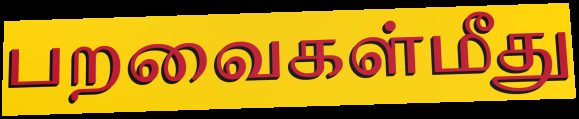
பறவைகள்மீது